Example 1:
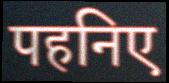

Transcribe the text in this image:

पहनिए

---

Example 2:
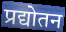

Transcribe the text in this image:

प्रद्योतन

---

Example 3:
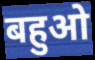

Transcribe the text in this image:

बहुओ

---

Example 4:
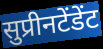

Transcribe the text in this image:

सुप्रीनटेंडेंट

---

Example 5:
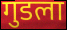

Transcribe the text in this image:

गुडला